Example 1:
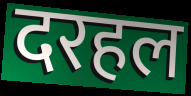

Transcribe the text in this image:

दरहल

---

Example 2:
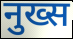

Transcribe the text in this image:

नुख्स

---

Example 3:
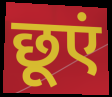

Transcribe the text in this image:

छूएं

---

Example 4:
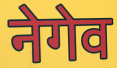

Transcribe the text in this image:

नेगेव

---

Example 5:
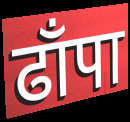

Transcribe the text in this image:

ढाँपा